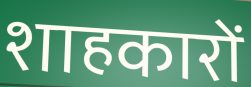
शाहकारों